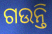
ଗଉନ୍ତି